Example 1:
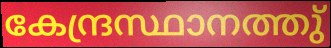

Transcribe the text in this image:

കേന്ദ്രസ്ഥാനത്തു്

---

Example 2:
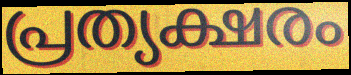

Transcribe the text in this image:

പ്രത്യക്ഷരം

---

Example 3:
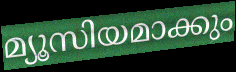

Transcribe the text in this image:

മ്യൂസിയമാക്കും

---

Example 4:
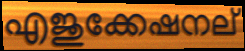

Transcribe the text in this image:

എജുക്കേഷനല്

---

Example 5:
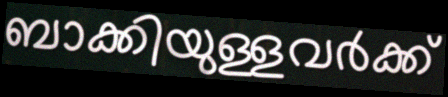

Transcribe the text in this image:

ബാക്കിയുള്ളവർക്ക്